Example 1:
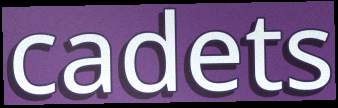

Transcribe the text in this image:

cadets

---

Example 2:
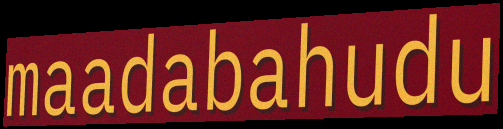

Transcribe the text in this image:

maadabahudu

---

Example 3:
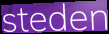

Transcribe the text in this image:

steden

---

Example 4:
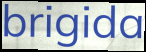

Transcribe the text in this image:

brigida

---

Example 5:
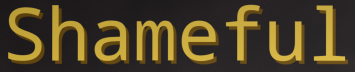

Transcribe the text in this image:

Shameful